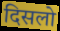
दिसलो